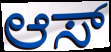
ಆಸ್